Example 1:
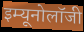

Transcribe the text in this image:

इम्यूनोलॉजी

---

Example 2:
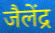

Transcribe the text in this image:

जैलेंद्र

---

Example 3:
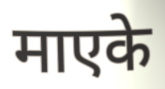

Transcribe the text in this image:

माएके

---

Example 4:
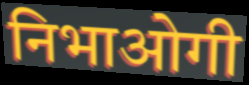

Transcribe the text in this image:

निभाओगी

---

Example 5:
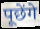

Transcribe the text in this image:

पूछेंगे